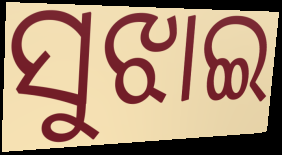
ସୁଝାଇ